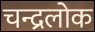
चन्द्रलोक